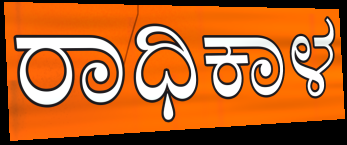
ರಾಧಿಕಾಳ